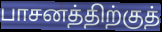
பாசனத்திற்குத்